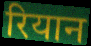
रियान